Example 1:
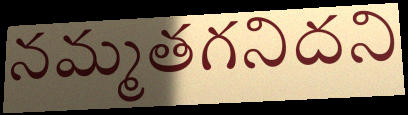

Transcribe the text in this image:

నమ్మతగనిదని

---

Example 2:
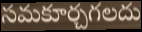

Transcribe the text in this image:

సమకూర్చగలదు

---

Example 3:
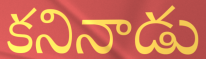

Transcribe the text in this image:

కనినాడు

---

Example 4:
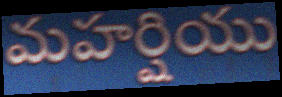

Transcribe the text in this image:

మహర్షియు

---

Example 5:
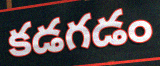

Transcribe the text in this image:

కడగడం